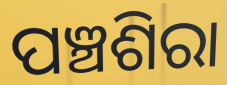
ପଞ୍ଚଶିରା